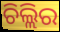
ଚିଲ୍ଲିର